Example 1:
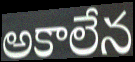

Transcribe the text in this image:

అకాలేన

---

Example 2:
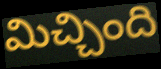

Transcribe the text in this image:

మిచ్చింది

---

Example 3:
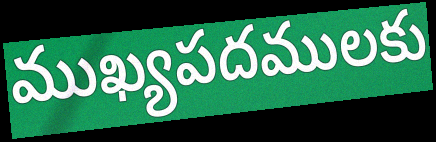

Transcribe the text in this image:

ముఖ్యపదములకు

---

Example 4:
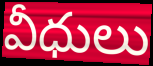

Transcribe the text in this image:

వీధులు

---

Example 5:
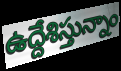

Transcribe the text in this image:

ఉద్దేశిస్తున్నాం